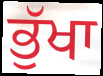
ਭੁੱਖਾ